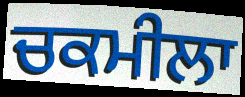
ਚਕਮੀਲਾ